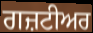
ਗਜ਼ਟੀਅਰ